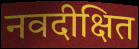
नवदीक्षित